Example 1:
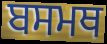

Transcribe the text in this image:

ਬਸਮਥ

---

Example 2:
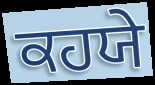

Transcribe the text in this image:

ਕਹਯੇ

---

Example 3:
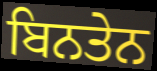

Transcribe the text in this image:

ਬਿਨਤੇਨ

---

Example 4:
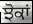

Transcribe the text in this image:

ਝੋਕਾਂ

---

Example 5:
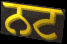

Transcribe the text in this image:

ਨਟ